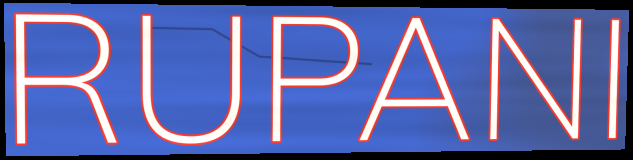
RUPANI